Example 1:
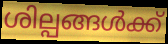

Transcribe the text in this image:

ശില്പങ്ങൾക്ക്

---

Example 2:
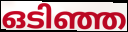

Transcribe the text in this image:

ഒടിഞ്ഞ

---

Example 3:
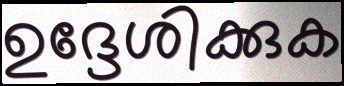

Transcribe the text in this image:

ഉദ്ദേശിക്കുക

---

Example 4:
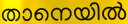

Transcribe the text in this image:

താനെയിൽ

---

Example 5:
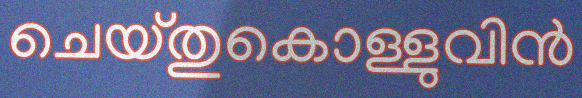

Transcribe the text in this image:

ചെയ്തുകൊള്ളുവിൻ